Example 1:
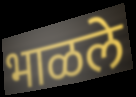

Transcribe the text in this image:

भाळले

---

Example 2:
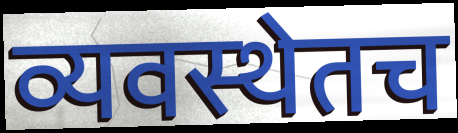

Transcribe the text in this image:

व्यवस्थेतच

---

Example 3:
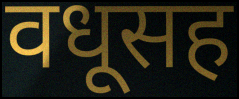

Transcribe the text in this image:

वधूसह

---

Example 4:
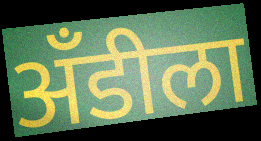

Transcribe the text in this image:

अँडीला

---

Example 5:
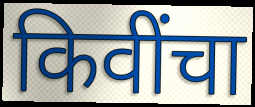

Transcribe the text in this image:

किवींचा